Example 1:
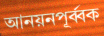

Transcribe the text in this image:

আনয়নপূর্ব্বক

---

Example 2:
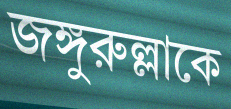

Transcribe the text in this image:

জঙ্গুরুল্লাকে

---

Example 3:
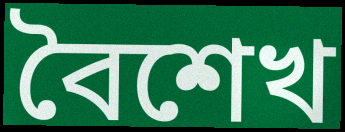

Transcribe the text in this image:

বৈশেখ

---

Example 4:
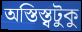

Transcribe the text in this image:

অস্তিস্ত্বটুকু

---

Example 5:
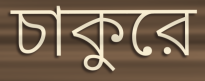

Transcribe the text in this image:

চাকুরে